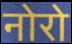
नोरो